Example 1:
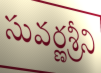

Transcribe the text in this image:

సువర్ణశ్రీని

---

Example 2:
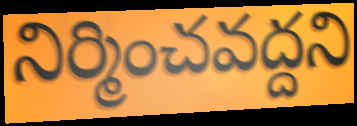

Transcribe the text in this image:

నిర్మించవద్దని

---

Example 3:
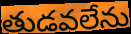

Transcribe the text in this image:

తుడవలేను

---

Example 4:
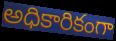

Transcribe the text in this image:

అధికారికంగా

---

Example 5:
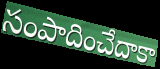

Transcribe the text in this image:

సంపాదించేదాకా